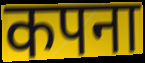
कपना